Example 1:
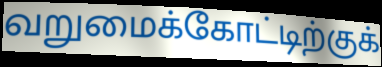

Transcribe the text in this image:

வறுமைக்கோட்டிற்குக்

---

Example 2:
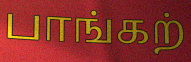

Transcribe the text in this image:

பாங்கற்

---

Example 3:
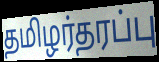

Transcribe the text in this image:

தமிழர்தரப்பு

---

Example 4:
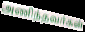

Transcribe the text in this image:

அணிந்தவர்கள்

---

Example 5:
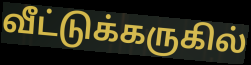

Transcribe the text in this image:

வீட்டுக்கருகில்